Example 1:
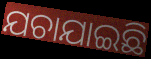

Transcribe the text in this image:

ଯଚାଯାଇଛି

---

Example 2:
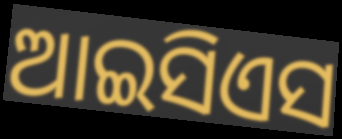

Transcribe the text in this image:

ଆଇସିଏସ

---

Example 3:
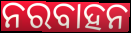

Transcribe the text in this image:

ନରବାହନ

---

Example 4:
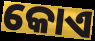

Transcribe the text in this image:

କୋଏ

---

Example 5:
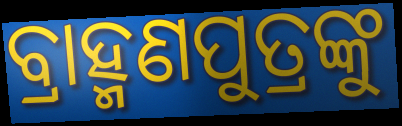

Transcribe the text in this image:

ବ୍ରାହ୍ମଣପୁତ୍ରଙ୍କୁ